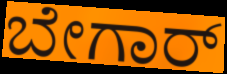
ಬೇಗಾರ್